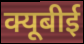
क्यूबीई